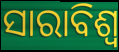
ସାରାବିଶ୍ବ